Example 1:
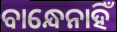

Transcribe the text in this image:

ବାନ୍ଧେନାହିଁ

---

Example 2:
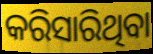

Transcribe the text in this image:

କରିସାରିଥିବା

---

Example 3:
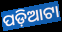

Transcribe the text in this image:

ପଡ଼ିଆଟା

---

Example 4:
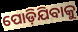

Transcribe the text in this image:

ପୋଡ଼ିଯିବାକୁ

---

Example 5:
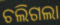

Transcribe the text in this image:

ଚଲିଗଲା